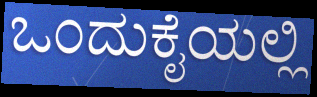
ಒಂದುಕೈಯಲ್ಲಿ